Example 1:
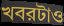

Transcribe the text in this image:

খবরটাও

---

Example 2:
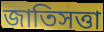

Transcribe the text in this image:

জাতিসত্তা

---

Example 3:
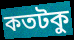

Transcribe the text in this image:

কতটকু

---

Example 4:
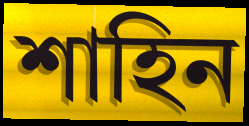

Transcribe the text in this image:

শাহিন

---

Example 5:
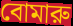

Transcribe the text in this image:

বোমারু